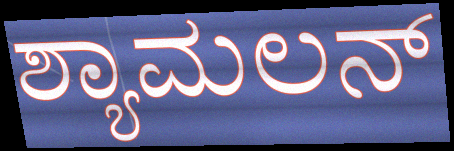
ಶ್ಯಾಮಲನ್